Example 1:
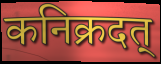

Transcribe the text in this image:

कनिक्रदत्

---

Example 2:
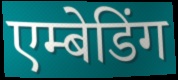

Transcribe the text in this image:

एम्बेडिंग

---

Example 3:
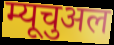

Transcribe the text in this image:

म्यूचुअल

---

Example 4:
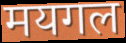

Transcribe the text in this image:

मयगल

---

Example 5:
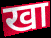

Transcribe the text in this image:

खा